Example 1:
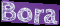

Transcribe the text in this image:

Bora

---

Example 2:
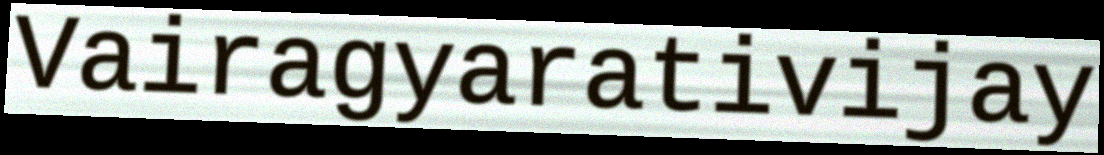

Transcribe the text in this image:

Vairagyarativijay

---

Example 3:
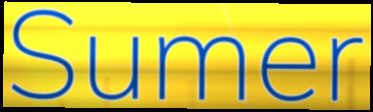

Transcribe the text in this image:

Sumer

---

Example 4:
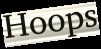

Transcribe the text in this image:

Hoops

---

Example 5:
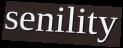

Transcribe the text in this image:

senility